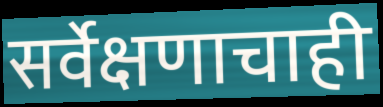
सर्वेक्षणाचाही